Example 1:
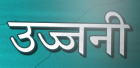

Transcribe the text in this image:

उज्जनी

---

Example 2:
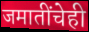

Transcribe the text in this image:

जमातींचेही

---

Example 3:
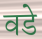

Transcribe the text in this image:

वडे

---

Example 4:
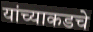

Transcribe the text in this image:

यांच्याकडचे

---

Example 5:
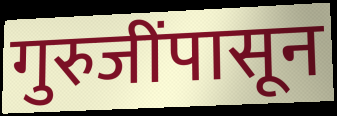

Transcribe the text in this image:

गुरुजींपासून